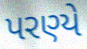
પરણ્યે